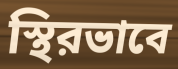
স্থিরভাবে